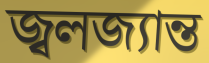
জ্বলজ্যান্ত